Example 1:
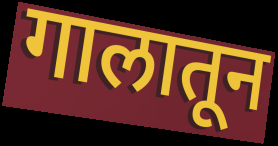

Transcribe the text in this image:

गालातून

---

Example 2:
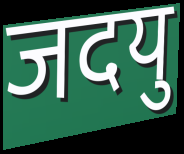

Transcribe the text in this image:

जदयु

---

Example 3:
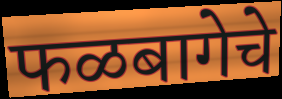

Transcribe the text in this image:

फळबागेचे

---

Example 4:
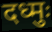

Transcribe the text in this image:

दध्मुः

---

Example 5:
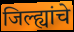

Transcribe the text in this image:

जिल्ह्यांचे